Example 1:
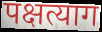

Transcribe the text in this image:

पक्षत्याग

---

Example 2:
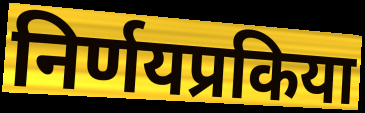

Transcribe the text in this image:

निर्णयप्रकिया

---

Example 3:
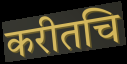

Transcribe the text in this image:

करीतचि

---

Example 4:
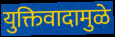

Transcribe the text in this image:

युक्तिवादामुळे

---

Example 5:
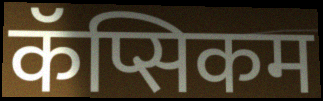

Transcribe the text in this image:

कॅप्सिकम